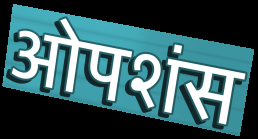
ओपशंस